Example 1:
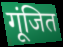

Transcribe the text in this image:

गूंजित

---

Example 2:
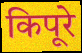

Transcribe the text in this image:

किपूरे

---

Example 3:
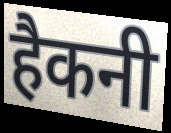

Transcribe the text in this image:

हैकनी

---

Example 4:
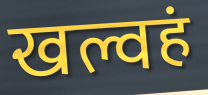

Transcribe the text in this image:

खल्वहं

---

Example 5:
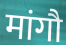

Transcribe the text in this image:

मांगौ